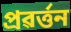
প্ৰৱৰ্ত্তন